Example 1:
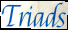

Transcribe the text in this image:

Triads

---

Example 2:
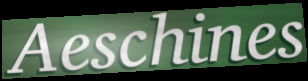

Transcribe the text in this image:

Aeschines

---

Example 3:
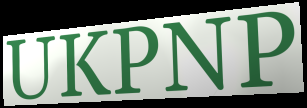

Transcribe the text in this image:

UKPNP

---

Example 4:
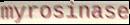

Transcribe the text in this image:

myrosinase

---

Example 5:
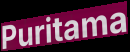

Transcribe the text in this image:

Puritama